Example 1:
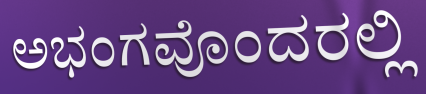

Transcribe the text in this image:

ಅಭಂಗವೊಂದರಲ್ಲಿ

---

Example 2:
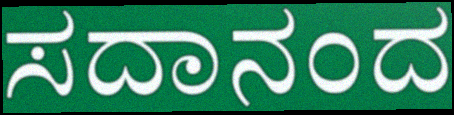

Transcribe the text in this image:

ಸದಾನಂದ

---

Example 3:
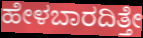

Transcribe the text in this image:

ಹೇಳಬಾರದಿತ್ತೇ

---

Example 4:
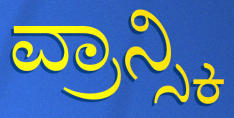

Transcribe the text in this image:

ವ್ರಾನ್ಸ್ಕಿ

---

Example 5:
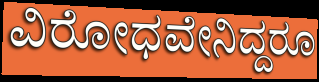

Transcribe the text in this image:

ವಿರೋಧವೇನಿದ್ದರೂ